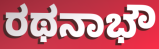
ರಥನಾಭೌ